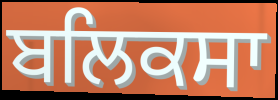
ਬਲਿਕਸਾ